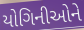
યોગિનીઓને